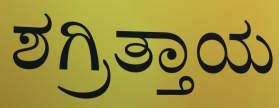
ಶಗ್ರಿತ್ತಾಯ